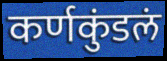
कर्णकुंडलं